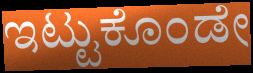
ಇಟ್ಟುಕೊಂಡೇ